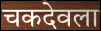
चकदेवला